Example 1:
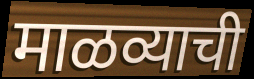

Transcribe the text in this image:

माळव्याची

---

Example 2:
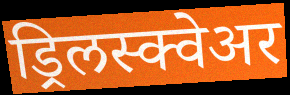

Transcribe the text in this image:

ड्रिलस्क्वेअर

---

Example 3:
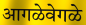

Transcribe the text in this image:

आगळेवेगळे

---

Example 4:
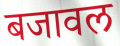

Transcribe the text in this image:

बजावल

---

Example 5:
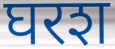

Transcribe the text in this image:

घरश